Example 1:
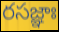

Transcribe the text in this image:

రసజ్ఞాః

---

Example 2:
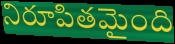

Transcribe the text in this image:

నిరూపితమైంది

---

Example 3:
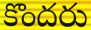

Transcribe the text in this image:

కొందరు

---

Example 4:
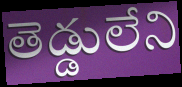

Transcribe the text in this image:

తెడ్డులేని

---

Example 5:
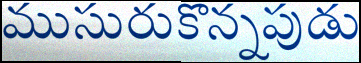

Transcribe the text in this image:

ముసురుకొన్నపుడు